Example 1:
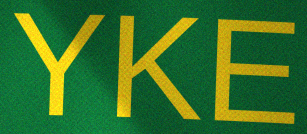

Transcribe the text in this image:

YKE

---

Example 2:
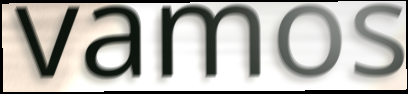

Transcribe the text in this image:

vamos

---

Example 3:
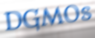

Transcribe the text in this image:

DGMOs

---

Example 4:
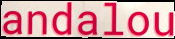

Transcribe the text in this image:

andalou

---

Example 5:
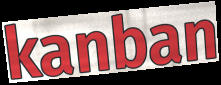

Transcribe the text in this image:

kanban